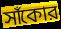
সাঁকোর